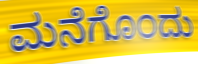
ಮನೆಗೊಂದು